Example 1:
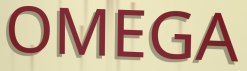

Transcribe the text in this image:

OMEGA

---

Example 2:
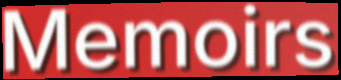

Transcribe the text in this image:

Memoirs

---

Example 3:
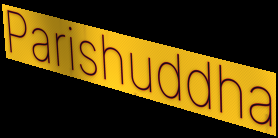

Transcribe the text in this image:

Parishuddha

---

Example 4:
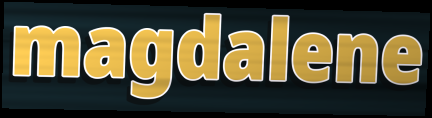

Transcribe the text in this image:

magdalene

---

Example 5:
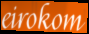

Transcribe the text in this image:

eirokom